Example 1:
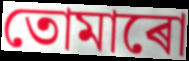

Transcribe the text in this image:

তোমাৰো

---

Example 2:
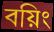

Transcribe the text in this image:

বয়িং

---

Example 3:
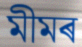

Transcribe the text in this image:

মীমৰ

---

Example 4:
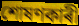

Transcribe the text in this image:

শোষণকাৰী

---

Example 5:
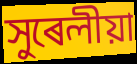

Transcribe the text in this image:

সুৰেলীয়া